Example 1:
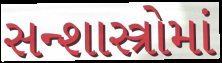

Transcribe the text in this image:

સન્શાસ્ત્રોમાં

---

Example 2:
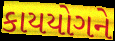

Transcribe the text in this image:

કાયયોગને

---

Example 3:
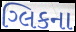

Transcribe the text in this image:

ગ્લિકના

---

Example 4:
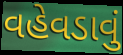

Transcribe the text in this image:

વહેવડાવું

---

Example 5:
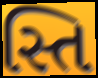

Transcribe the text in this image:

સ્તિ